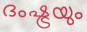
ദംഷ്ട്രയും